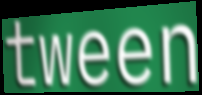
tween